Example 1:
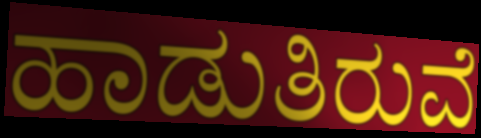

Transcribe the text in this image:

ಹಾಡುತಿರುವೆ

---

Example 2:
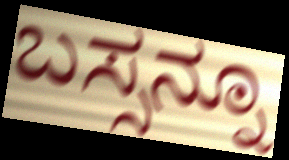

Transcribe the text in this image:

ಬಸ್ಸನ್ನೂ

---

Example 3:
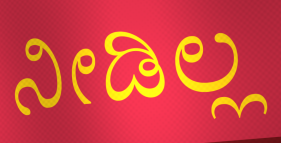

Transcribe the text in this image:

ನೀಡಿಲ್ಲ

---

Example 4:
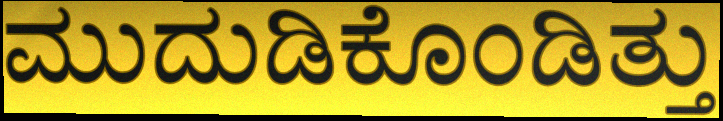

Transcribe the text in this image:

ಮುದುಡಿಕೊಂಡಿತ್ತು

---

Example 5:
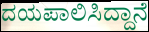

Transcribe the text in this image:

ದಯಪಾಲಿಸಿದ್ದಾನೆ